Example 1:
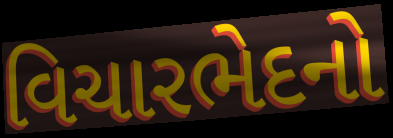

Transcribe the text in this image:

વિચારભેદનો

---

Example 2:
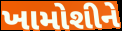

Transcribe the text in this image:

ખામોશીને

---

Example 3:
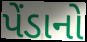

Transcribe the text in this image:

પેંડાનો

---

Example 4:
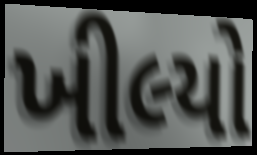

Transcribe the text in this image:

ખીલ્યો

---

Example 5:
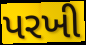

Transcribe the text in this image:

પરખી